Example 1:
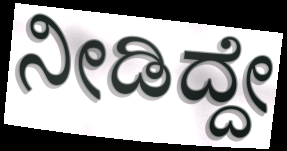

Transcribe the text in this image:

ನೀಡಿದ್ದೇ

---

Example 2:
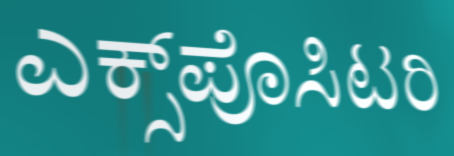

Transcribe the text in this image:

ಎಕ್ಸ್‌ಪೊಸಿಟರಿ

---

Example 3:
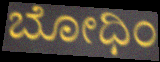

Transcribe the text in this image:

ಬೋಧಿಂ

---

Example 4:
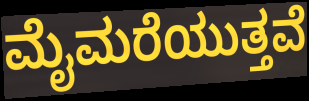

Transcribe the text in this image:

ಮೈಮರೆಯುತ್ತವೆ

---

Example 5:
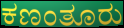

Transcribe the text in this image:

ಕಣಂತೂರು